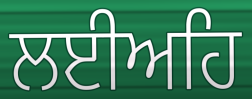
ਲਈਅਹਿ